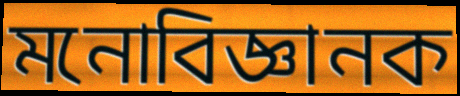
মনোবিজ্ঞানক